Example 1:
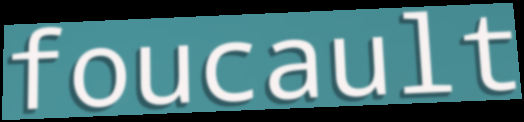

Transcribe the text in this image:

foucault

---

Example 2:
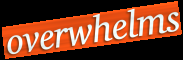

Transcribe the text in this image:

overwhelms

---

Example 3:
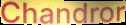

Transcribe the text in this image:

Chandror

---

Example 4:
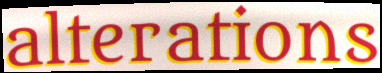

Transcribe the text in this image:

alterations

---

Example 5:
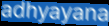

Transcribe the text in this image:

adhyayana